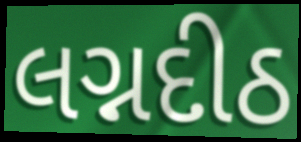
લગ્નદીઠ